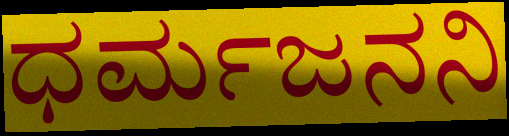
ಧರ್ಮಜನನಿ